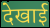
देखाई